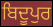
ਬਿਦੂਪੁਰ